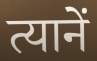
त्यानें